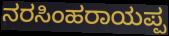
ನರಸಿಂಹರಾಯಪ್ಪ